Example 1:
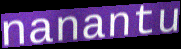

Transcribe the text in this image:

nanantu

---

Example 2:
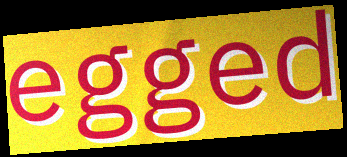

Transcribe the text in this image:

egged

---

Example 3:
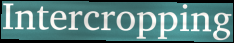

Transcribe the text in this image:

Intercropping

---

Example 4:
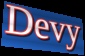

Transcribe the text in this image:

Devy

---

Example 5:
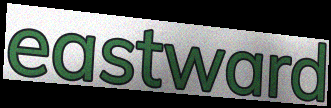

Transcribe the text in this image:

eastward